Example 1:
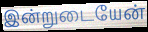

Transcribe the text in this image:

இன்றுடையேன்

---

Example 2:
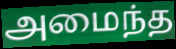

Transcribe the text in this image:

அமைந்த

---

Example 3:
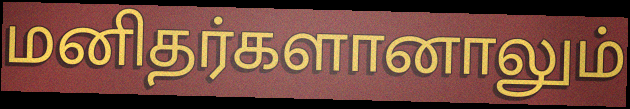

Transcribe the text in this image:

மனிதர்களானாலும்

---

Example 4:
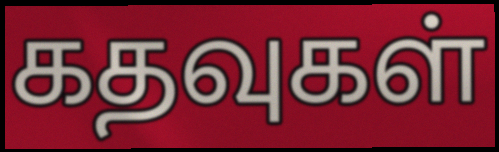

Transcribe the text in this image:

கதவுகள்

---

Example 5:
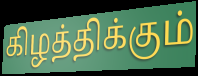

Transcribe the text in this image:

கிழத்திக்கும்